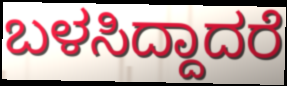
ಬಳಸಿದ್ದಾದರೆ